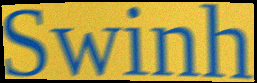
Swinh